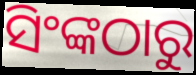
ସିଂଙ୍କଠାରୁ